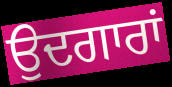
ਉਦਗਾਰਾਂ